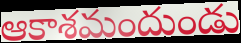
ఆకాశమందుండు